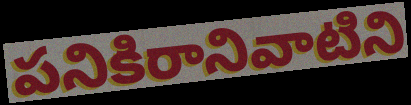
పనికిరానివాటిని